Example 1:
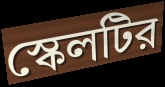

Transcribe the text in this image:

স্কেলটির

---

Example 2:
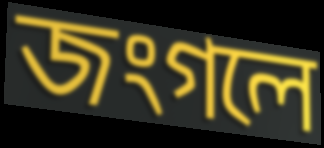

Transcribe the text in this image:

জংগলে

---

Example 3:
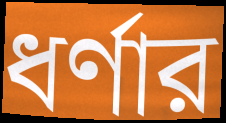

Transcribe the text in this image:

ধর্ণার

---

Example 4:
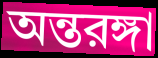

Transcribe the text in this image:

অন্তরঙ্গা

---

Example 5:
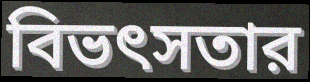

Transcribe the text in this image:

বিভৎসতার